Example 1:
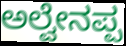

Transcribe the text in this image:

ಅಲ್ವೇನಪ್ಪ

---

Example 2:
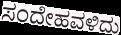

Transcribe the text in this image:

ಸಂದೇಹವಳಿದು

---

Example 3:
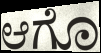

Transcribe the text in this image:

ಆಗೊ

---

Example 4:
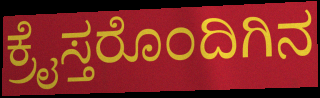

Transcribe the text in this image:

ಕ್ರೈಸ್ತರೊಂದಿಗಿನ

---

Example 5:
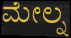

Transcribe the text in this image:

ಮೇಲ್ನ